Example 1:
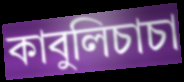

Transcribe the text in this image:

কাবুলিচাচা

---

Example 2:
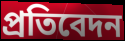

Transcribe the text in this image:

প্ৰতিবেদন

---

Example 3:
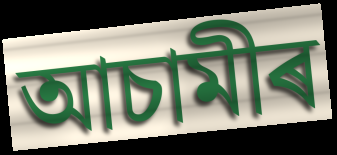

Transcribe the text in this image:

আচামীৰ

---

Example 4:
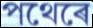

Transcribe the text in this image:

পথেৰে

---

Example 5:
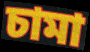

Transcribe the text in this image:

চামা